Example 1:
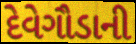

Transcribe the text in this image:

દેવેગૌડાની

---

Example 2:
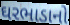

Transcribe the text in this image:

ઘરભાડાનો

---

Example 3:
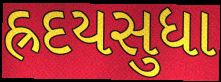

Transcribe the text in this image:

હ્રદયસુધા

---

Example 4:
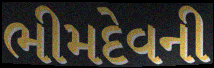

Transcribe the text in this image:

ભીમદેવની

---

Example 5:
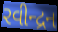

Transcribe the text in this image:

રવીન્દ્રન